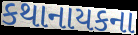
કથાનાયકના